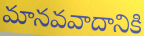
మానవవాదానికి